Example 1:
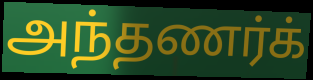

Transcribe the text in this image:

அந்தணர்க்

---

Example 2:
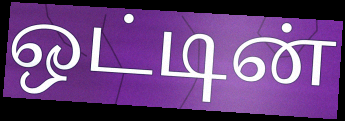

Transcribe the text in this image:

ஒட்டின்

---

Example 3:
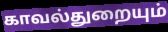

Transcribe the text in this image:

காவல்துறையும்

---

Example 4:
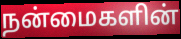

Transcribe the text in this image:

நன்மைகளின்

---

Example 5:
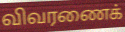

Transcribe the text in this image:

விவரணைக்